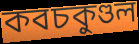
কবচকুণ্ডল